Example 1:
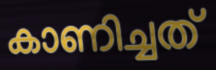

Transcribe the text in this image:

കാണിച്ചത്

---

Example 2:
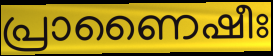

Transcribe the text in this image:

പ്രാണൈഷീഃ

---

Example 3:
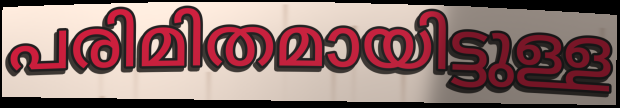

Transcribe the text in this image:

പരിമിതമായിട്ടുള്ള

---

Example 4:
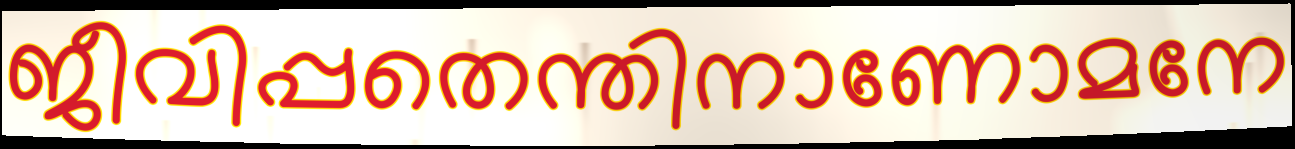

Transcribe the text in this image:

ജീവിപ്പതെന്തിനാണോമനേ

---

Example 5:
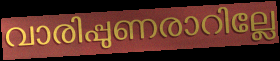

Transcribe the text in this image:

വാരിപ്പുണരാറില്ലേ